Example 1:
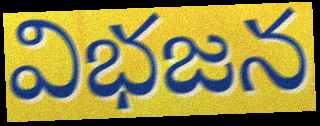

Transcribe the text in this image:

విభజన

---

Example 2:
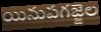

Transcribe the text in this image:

యినుపగజ్జెల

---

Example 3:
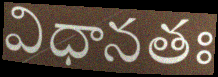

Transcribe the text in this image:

విధానతః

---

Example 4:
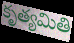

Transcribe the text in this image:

కృత్యమితి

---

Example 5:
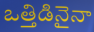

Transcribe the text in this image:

ఒత్తిడినైనా